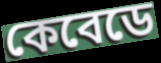
কেবেডে